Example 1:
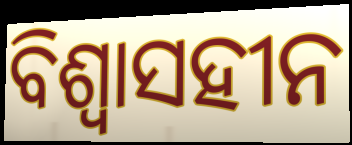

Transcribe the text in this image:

ବିଶ୍ୱାସହୀନ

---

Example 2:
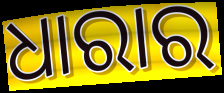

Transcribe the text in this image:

ଧାରାର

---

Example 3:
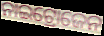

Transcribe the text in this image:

ନାଇଟ୍ରୋଜେନ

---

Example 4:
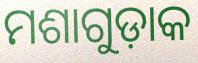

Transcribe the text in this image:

ମଶାଗୁଡ଼ାକ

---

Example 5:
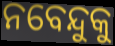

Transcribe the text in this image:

ନବେନ୍ଦୁକୁ